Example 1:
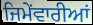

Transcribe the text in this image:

ਜਿਮੇਂਵਾਰੀਆਂ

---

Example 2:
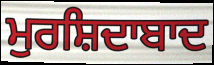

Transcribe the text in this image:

ਮੁਰਸ਼ਿਦਾਬਾਦ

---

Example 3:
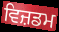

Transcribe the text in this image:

ਵਿਜ਼ਡਮ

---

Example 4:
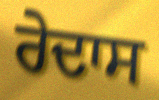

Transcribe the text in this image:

ਰੇਦਾਸ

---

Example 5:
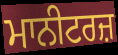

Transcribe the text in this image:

ਮਾਨੀਟਰਜ਼